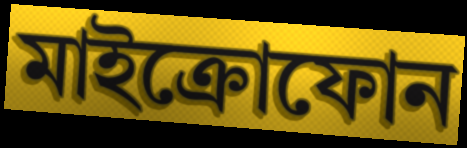
মাইক্রোফোন